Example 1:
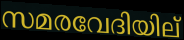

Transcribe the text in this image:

സമരവേദിയില്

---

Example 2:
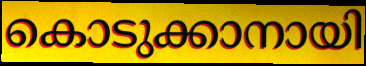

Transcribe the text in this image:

കൊടുക്കാനായി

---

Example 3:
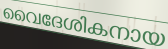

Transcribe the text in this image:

വൈദേശികനായ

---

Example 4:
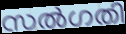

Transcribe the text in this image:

സൽഗതി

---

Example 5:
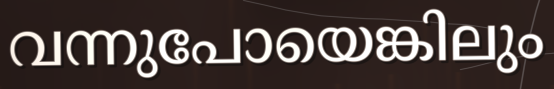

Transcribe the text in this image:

വന്നുപോയെങ്കിലും